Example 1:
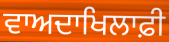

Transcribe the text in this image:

ਵਾਅਦਾਖਿਲਾਫ਼ੀ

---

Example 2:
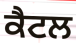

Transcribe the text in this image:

ਕੈਟਲ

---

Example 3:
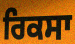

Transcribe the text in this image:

ਰਿਕਸਾ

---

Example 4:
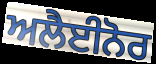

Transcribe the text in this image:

ਅਲੈਈਨੋਰ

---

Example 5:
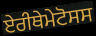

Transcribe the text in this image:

ਏਰੀਥੇਮੇਟੋਸਸ